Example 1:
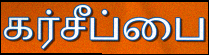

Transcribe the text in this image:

கர்சீப்பை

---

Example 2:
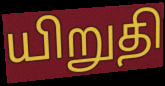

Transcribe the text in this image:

யிறுதி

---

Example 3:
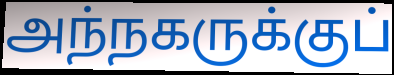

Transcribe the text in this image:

அந்நகருக்குப்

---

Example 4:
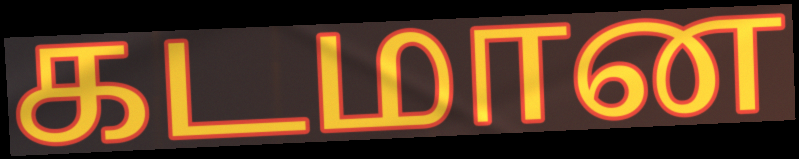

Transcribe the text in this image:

கடமான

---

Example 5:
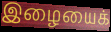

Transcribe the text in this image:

இழையைக்